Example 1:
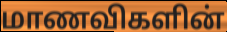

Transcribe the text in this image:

மாணவிகளின்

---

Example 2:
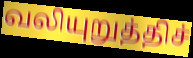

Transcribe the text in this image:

வலியுறுத்திச்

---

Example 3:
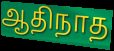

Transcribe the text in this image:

ஆதிநாத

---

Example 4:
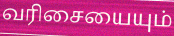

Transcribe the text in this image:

வரிசையையும்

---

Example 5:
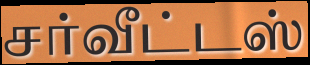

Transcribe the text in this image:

சர்வீட்டஸ்